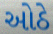
ઓઠે